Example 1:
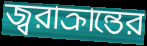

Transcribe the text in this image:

জ্বরাক্রান্তের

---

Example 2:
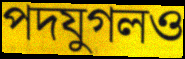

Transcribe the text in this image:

পদযুগলও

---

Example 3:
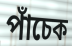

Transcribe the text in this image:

পাঁচেক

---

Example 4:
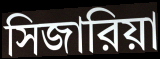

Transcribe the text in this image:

সিজারিয়া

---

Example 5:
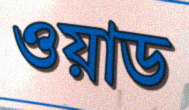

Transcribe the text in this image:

ওয়াড